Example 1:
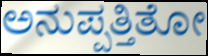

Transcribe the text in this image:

ಅನುಪ್ಪತ್ತಿತೋ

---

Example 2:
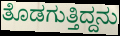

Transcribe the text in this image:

ತೊಡಗುತ್ತಿದ್ದನು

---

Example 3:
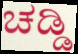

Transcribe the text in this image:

ಚಡ್ಡಿ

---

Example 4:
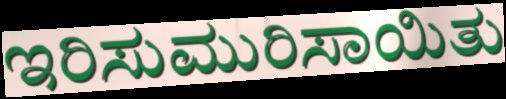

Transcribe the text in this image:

ಇರಿಸುಮುರಿಸಾಯಿತು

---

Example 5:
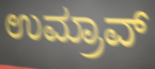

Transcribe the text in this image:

ಉಮ್ರಾವ್